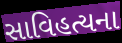
સાવિહત્યના